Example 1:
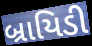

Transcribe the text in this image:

બ્રાયિડી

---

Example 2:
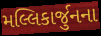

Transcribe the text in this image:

મલ્લિકાર્જુનના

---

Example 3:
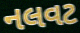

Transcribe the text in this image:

નલવટ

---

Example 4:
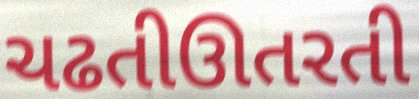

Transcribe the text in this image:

ચઢતીઊતરતી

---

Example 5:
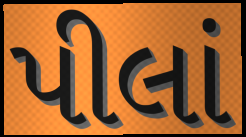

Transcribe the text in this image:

પીલાં